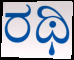
ರಥಿ